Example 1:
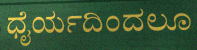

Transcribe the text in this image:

ಧೈರ್ಯದಿಂದಲೂ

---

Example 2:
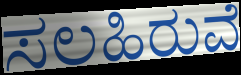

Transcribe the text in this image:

ಸಲಹಿರುವೆ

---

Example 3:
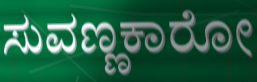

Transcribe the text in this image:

ಸುವಣ್ಣಕಾರೋ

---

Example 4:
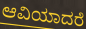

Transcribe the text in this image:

ಆವಿಯಾದರೆ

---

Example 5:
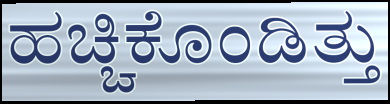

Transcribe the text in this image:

ಹಚ್ಚಿಕೊಂಡಿತ್ತು